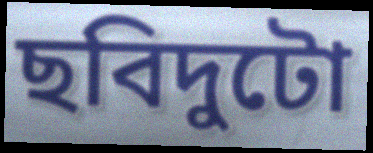
ছবিদুটো